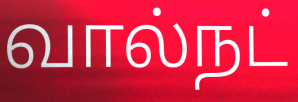
வால்நட்